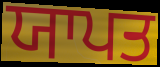
ਯਾਪਤ